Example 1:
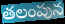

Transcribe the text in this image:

తలంపున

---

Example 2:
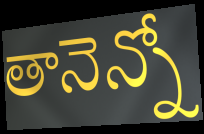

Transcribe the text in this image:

తానెన్నో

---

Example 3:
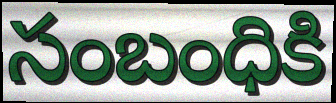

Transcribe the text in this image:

సంబంధికి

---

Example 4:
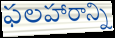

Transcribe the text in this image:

ఫలహారాన్ని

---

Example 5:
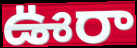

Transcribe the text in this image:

ఊరా